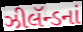
ઝીલૅન્ડનાં